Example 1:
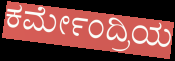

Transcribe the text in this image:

ಕರ್ಮೇಂದ್ರಿಯ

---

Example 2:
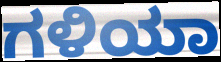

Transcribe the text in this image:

ಗಳಿಯಾ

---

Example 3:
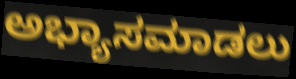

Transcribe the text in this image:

ಅಭ್ಯಾಸಮಾಡಲು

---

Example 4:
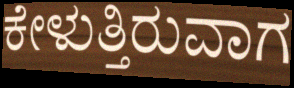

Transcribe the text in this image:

ಕೇಳುತ್ತಿರುವಾಗ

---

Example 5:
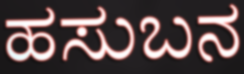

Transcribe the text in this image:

ಹಸುಬನ